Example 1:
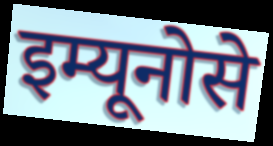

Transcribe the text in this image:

इम्यूनोसे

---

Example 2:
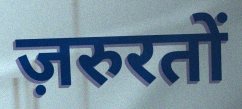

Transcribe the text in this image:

ज़रुरतों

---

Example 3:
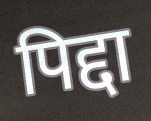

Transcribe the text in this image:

पिद्दा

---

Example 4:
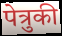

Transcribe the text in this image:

पेत्रुकी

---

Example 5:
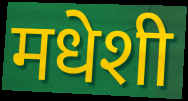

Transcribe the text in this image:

मधेशी